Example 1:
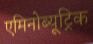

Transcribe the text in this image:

एमिनोब्यूट्रिक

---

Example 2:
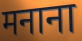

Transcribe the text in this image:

मनाना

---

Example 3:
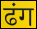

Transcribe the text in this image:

ढंग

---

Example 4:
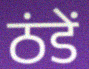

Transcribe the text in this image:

ठंडें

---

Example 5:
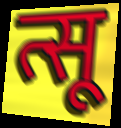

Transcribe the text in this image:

त्सू